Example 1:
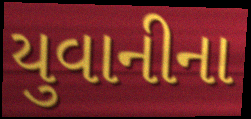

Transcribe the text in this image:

યુવાનીના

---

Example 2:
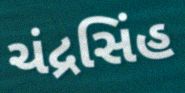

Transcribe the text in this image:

ચંદ્રસિંહ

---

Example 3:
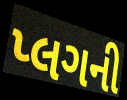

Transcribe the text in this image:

પ્લગની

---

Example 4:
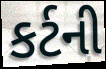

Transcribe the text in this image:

કર્ટની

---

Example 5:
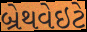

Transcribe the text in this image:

બ્રેથવેઇટે